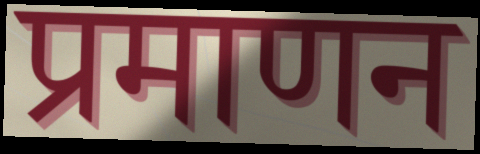
प्रमाणन